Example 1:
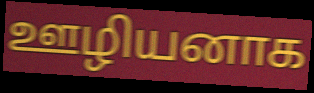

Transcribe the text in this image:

ஊழியனாக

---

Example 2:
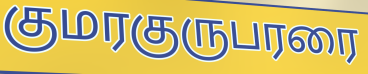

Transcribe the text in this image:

குமரகுருபரரை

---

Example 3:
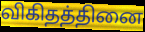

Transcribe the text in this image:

விகிதத்தினை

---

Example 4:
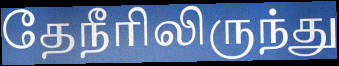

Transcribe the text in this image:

தேநீரிலிருந்து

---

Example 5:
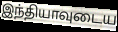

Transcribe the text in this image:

இந்தியாவுடைய